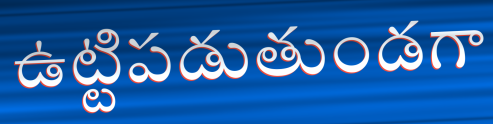
ఉట్టిపడుతుండగా